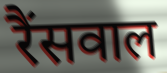
रैंसवाल